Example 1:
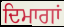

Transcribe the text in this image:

ਦਿਮਾਗਾਂ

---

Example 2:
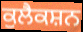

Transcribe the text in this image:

ਕੁਲੈਕਸ਼ਨ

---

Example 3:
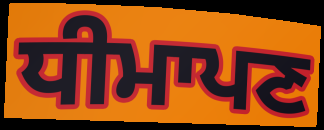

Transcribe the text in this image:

ਧੀਮਾਪਣ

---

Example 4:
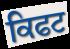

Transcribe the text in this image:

ਕਿਫਟ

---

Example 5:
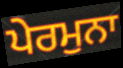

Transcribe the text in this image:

ਪੇਰਮੁਨਾ